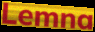
Lemna